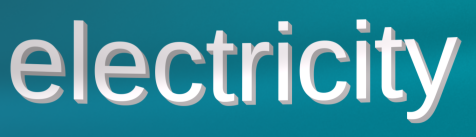
electricity